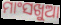
ମାଂସଖୁଆ